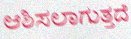
ಆಶಿಸಲಾಗುತ್ತದೆ